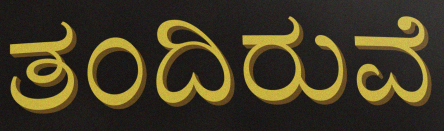
ತಂದಿರುವೆ